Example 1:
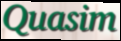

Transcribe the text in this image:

Quasim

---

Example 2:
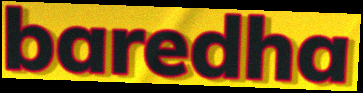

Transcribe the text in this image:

baredha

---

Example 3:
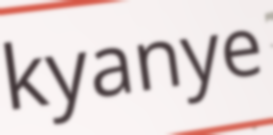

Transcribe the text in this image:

kyanye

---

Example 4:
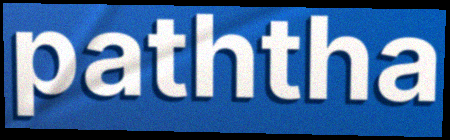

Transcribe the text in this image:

paththa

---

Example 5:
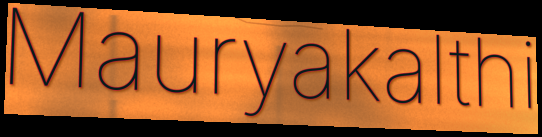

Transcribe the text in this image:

Mauryakalthi